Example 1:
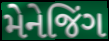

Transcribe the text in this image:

મેનેજિંગ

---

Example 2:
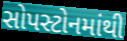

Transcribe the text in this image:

સોપસ્ટોનમાંથી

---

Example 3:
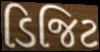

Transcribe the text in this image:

ડિજિટ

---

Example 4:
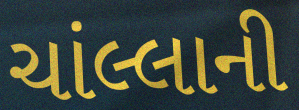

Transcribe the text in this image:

ચાંલ્લાની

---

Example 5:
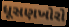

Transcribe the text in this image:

ધૂસણખોરો